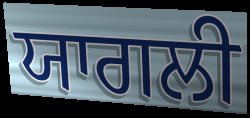
ਯਾਗਲੀ